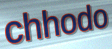
chhodo